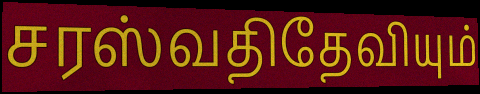
சரஸ்வதிதேவியும்